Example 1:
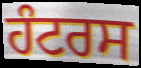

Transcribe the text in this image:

ਹੰਟਰਸ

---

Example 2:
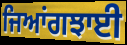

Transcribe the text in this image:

ਜਿਆਂਗਝਾਈ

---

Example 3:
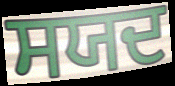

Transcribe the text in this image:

ਸਯਦ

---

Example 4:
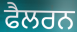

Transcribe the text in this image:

ਫੈਲਰਨ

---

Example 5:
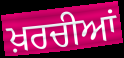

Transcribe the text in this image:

ਖ਼ਰਚੀਆਂ